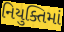
નિયુક્તિમાં